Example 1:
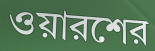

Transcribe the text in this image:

ওয়ারশের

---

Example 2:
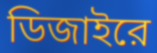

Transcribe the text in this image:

ডিজাইরে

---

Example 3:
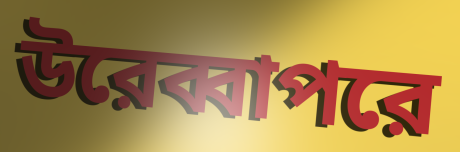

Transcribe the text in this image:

উরেব্বাপরে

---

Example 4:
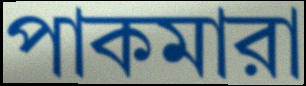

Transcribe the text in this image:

পাকমারা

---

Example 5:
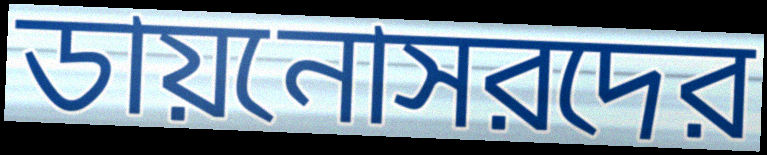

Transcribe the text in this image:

ডায়নোসরদের